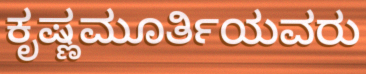
ಕೃಷ್ಣಮೂರ್ತಿಯವರು